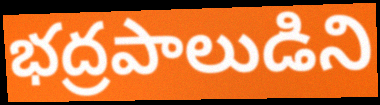
భద్రపాలుడిని